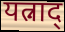
यत्नाद्